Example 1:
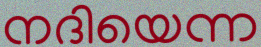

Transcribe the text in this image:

നദിയെന്ന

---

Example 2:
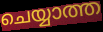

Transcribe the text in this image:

ചെയ്യാത്ത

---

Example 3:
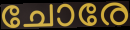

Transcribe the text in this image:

ചോരേ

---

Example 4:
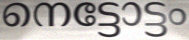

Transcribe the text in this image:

നെട്ടോട്ടം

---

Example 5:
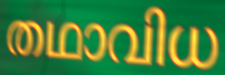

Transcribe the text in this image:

തഥാവിധ